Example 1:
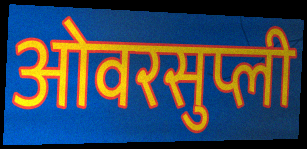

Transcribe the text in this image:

ओवरसुप्ली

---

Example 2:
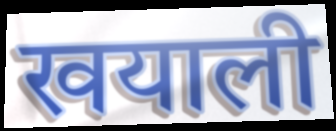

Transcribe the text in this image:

खयाली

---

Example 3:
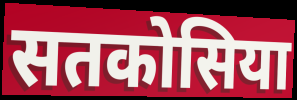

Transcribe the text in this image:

सतकोसिया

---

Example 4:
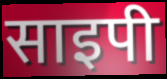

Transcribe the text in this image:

साइपी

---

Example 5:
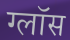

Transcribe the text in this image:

ग्लॉस